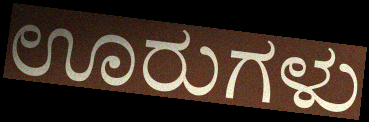
ಊರುಗಳು